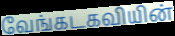
வேங்கடகவியின்